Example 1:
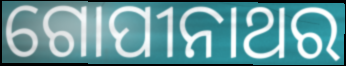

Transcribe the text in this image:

ଗୋପୀନାଥର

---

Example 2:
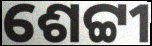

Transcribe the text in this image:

ଶେଟ୍ଟୀ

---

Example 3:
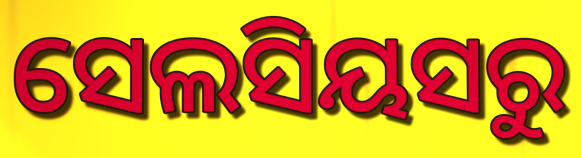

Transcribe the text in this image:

ସେଲସିୟସରୁ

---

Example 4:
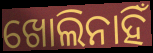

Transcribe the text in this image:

ଖୋଲିନାହିଁ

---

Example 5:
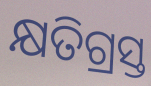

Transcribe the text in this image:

କ୍ଷତିଗ୍ରସ୍ତ